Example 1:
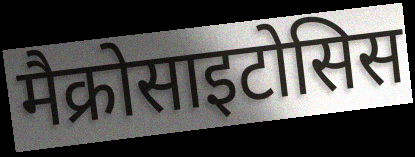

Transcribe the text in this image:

मैक्रोसाइटोसिस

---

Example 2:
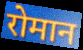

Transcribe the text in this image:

रोमान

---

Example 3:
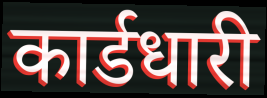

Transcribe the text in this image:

कार्डधारी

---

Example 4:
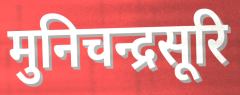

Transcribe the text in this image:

मुनिचन्द्रसूरि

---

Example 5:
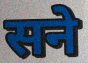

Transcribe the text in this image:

सने